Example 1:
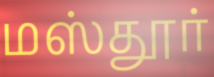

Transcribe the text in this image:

மஸ்தூர்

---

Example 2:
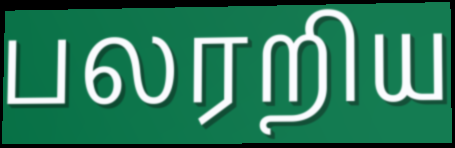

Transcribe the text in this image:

பலரறிய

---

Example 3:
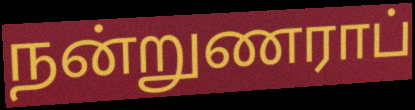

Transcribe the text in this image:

நன்றுணராப்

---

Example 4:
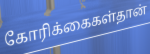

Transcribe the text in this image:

கோரிக்கைகள்தான்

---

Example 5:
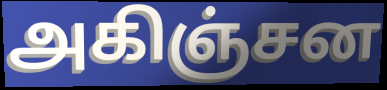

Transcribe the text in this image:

அகிஞ்சன